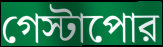
গেস্টাপোর